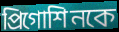
প্রিগোশিনকে